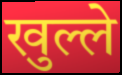
खुल्ले